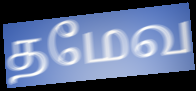
தமேவ